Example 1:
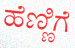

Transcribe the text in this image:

ಹೆಣ್ಣಿಗೆ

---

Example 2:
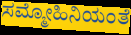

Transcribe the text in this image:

ಸಮ್ಮೋಹಿನಿಯಂತೆ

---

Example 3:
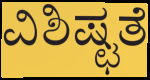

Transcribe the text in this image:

ವಿಶಿಷ್ಟತೆ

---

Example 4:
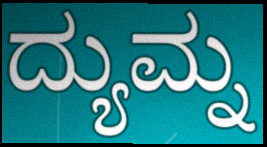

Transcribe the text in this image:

ದ್ಯುಮ್ನ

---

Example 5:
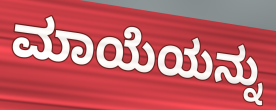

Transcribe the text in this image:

ಮಾಯೆಯನ್ನು